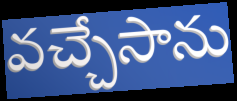
వచ్చేసాను